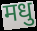
मधु